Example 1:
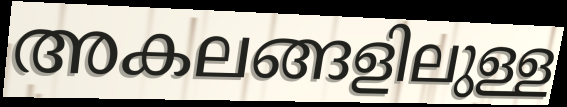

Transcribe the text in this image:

അകലങ്ങളിലുള്ള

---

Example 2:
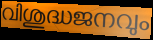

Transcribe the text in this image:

വിശുദ്ധജനവും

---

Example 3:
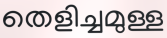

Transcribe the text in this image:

തെളിച്ചമുള്ള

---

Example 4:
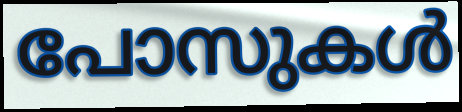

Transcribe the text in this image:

പോസുകൾ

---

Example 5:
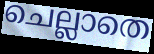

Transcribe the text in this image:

ചെല്ലാതെ